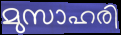
മുസാഹരി